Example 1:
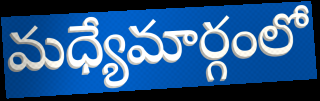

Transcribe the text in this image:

మధ్యేమార్గంలో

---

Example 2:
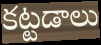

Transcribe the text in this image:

కట్టడాలు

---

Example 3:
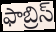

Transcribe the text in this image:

ఫాబ్రిస్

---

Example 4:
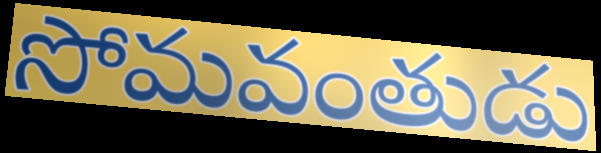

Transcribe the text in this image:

సోమవంతుడు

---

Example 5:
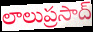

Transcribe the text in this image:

లాలుప్రసాద్